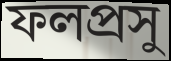
ফলপ্ৰসু